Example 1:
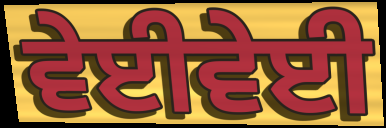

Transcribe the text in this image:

ਵੇਈਵੇਈ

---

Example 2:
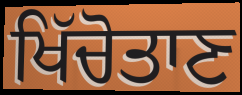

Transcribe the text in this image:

ਖਿੱਚੋਤਾਣ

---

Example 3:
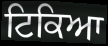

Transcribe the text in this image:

ਟਿਕਿਆ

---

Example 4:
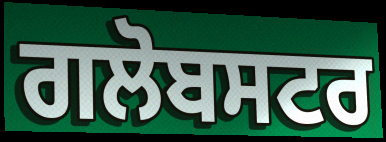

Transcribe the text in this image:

ਗਲੋਬਸਟਰ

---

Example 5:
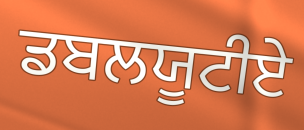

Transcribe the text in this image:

ਡਬਲਯੂਟੀਏ